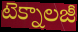
టెక్నాలజీ